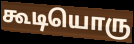
கூடியொரு